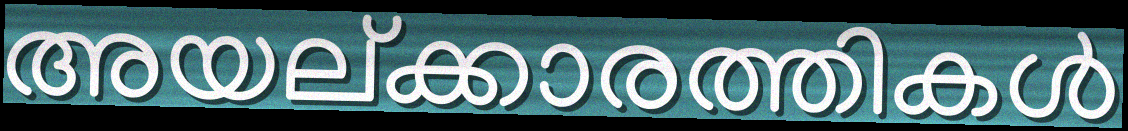
അയല്ക്കാരത്തികൾ